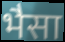
भैसा